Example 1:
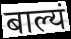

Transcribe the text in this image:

बाल्यं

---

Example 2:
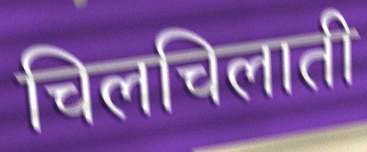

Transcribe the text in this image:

चिलचिलाती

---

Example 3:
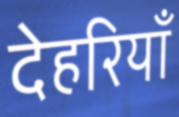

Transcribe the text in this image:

देहरियाँ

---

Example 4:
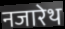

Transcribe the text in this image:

नजारेथ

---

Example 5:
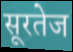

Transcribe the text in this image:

सूरतेज